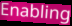
Enabling